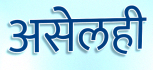
असेलही